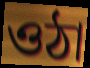
ওঠা